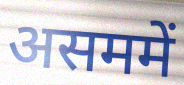
असममें